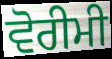
ਵੋਰੀਮੀ